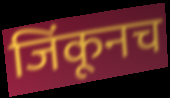
जिंकूनच